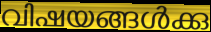
വിഷയങ്ങൾക്കു